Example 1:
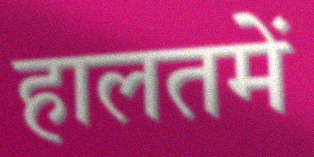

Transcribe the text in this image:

हालतमें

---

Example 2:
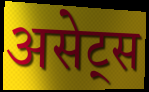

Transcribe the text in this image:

असेट्स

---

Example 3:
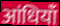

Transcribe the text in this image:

आंधियाँ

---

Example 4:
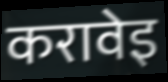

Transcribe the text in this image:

करावेइ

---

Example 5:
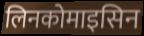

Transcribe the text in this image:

लिनकोमाइसिन